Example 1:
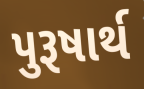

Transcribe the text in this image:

પુરૂષાર્થ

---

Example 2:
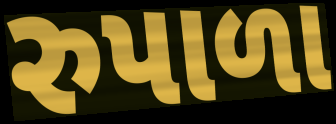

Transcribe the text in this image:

રુપાળા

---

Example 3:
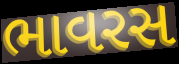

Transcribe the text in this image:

ભાવરસ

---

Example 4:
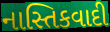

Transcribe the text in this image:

નાસ્તિકવાદી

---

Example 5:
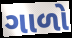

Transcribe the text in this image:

ગાળો